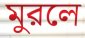
মুরলে